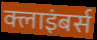
क्लाइंबर्स